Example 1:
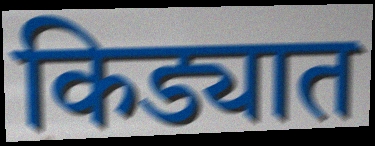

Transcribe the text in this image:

किड्यात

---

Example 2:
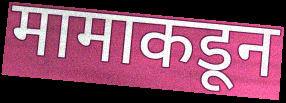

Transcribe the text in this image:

मामाकडून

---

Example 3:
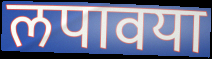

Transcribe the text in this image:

लपावया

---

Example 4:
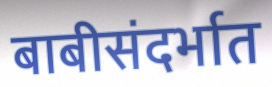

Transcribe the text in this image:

बाबीसंदर्भात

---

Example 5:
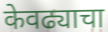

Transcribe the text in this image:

केवढ्याचा